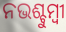
ନଭଶ୍ଚୁମ୍ବୀ